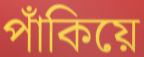
পাঁকিয়ে